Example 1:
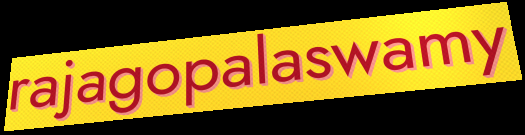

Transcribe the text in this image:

rajagopalaswamy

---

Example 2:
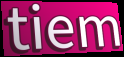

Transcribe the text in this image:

tiem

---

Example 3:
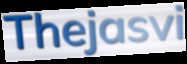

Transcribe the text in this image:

Thejasvi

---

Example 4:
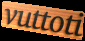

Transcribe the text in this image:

vuttoti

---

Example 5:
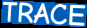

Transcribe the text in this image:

TRACE